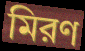
মিরণ